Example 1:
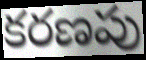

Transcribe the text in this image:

కరణపు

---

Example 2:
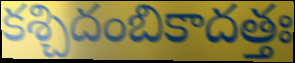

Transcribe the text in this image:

కశ్చిదంబికాదత్తః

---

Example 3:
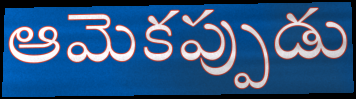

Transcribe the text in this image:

ఆమెకప్పుడు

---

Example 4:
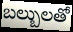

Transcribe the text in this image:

బల్బులతో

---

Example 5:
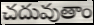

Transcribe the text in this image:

చదువుతాం